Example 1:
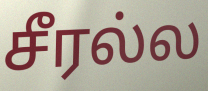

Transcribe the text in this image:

சீரல்ல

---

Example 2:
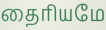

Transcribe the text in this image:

தைரியமே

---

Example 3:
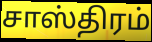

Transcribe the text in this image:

சாஸ்திரம்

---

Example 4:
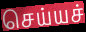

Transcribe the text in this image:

செய்யச்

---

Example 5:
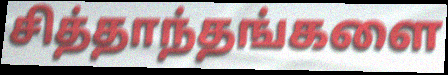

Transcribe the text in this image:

சித்தாந்தங்களை